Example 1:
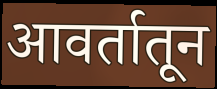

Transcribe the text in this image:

आवर्तातून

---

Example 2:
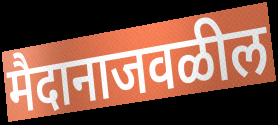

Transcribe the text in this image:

मैदानाजवळील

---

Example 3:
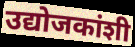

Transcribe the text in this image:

उद्योजकांशी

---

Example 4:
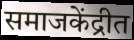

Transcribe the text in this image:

समाजकेंद्रीत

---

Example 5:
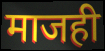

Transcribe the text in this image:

माजही